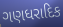
ગણધરાદિક